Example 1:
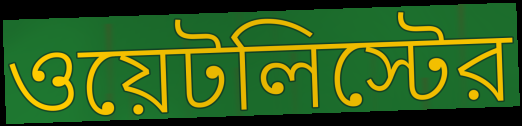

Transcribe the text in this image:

ওয়েটলিস্টের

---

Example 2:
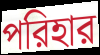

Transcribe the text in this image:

পরিহার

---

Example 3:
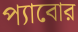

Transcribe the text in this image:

প্যাবোর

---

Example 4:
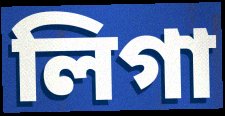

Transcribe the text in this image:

লিগা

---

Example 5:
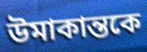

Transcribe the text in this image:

উমাকান্তকে